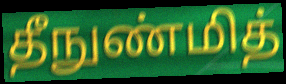
தீநுண்மித்